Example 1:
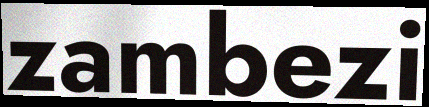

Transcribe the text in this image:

zambezi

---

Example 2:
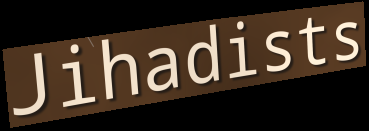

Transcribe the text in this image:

Jihadists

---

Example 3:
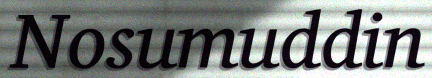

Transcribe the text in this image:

Nosumuddin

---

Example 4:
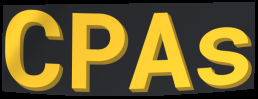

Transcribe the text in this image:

CPAs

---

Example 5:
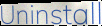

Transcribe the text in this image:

Uninstall